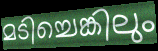
മടിച്ചെങ്കിലും